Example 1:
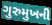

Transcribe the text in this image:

ગુરુમુખની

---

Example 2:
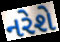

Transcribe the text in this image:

નરેશે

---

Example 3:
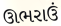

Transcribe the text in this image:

ઊભરાઉં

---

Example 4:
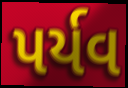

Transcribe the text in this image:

પર્યવ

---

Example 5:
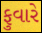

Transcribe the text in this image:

ફુવારે